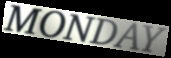
MONDAY